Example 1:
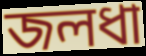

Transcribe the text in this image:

জলধা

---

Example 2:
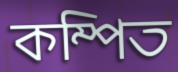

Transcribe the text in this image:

কম্পিত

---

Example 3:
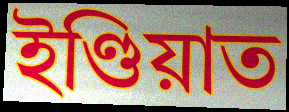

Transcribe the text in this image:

ইণ্ডিয়াত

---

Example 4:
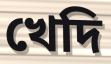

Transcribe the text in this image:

খেদি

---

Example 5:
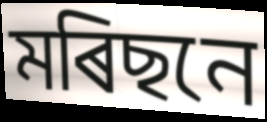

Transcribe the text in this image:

মৰিছনে